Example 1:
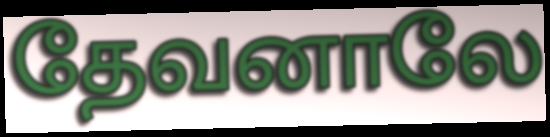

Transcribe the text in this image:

தேவனாலே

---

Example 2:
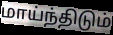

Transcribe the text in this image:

மாய்ந்திடும்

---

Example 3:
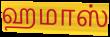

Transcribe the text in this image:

ஹமாஸ்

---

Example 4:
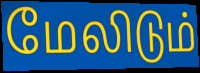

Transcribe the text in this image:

மேலிடும்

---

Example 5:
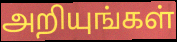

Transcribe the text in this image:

அறியுங்கள்